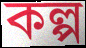
কল্প